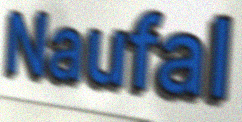
Naufal